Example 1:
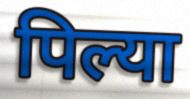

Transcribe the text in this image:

पिल्या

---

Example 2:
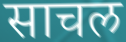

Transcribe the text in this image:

साचल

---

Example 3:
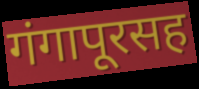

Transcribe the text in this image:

गंगापूरसह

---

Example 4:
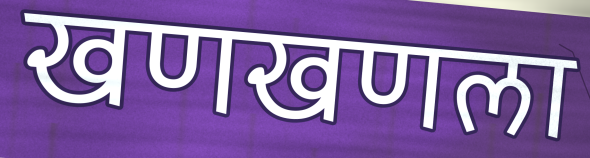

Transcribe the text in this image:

खणखणला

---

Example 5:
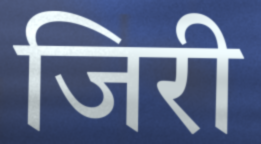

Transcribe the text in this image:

जिरी